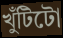
খুঁটিটো